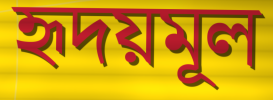
হৃদয়মূল